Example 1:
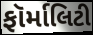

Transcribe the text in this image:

ફૉર્માલિટી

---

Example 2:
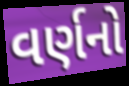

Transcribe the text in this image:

વર્ણનો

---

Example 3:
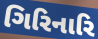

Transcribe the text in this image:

ગિરિનારિ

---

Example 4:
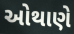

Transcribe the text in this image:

ઓથાણે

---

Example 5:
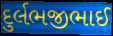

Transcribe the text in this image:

દુર્લભજીભાઈ